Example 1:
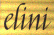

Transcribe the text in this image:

elini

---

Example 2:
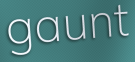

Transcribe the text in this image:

gaunt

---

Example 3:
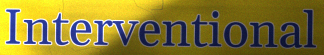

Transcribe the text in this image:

Interventional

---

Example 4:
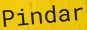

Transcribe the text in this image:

Pindar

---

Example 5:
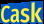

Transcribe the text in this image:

Cask